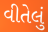
વીતેલું